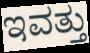
ಇವತ್ತು